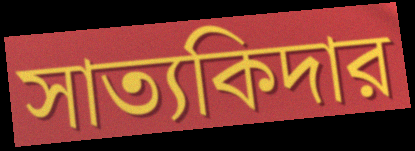
সাত্যকিদার